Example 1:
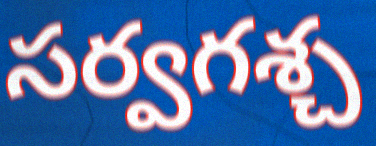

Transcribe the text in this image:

సర్వగశ్చ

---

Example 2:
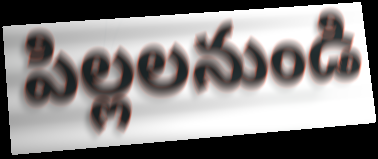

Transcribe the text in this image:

పిల్లలనుండి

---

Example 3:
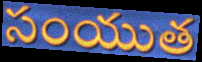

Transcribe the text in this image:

సంయుత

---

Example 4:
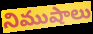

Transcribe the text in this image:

నిముషాలు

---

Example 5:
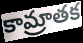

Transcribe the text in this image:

కామ్రాతక